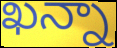
ఖన్నా